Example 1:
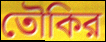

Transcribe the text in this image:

তৌকির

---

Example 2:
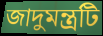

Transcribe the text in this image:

জাদুমন্ত্রটি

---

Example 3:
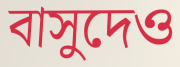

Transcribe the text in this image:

বাসুদেও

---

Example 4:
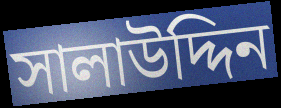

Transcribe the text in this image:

সালাউদ্দিন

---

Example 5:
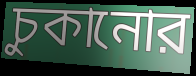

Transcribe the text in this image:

চুকানোর